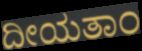
ದೀಯತಾಂ